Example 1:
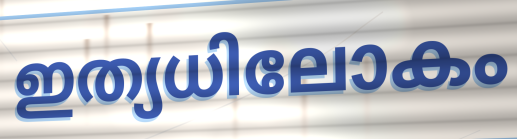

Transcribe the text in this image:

ഇത്യധിലോകം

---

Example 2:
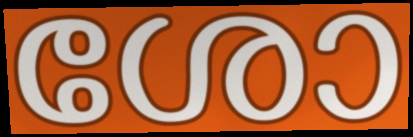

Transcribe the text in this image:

ശോ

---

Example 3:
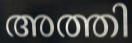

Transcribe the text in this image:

അത്തി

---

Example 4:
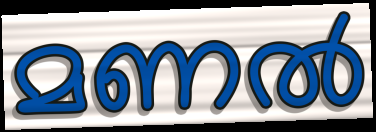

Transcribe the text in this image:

മണൽ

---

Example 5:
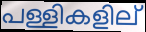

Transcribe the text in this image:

പള്ളികളില്